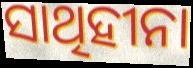
ସାଥିହୀନା